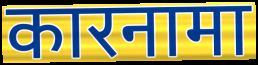
कारनामा